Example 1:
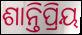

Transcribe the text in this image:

ଶାନ୍ତିପ୍ରିୟ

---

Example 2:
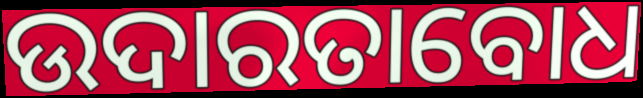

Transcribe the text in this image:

ଉଦାରତାବୋଧ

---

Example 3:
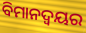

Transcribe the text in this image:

ବିମାନଦ୍ବୟର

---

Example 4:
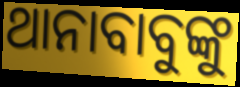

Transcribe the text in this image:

ଥାନାବାବୁଙ୍କୁ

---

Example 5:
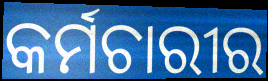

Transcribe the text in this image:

କର୍ମଚାରୀର